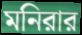
মনিরার